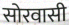
सोरवासी